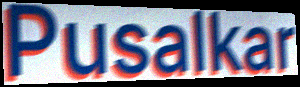
Pusalkar